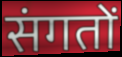
संगतों